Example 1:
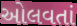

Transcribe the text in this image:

ઓલવતાં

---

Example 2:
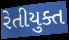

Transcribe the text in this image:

રેતીયુક્ત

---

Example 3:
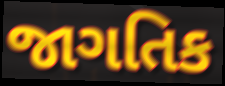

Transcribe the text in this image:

જાગતિક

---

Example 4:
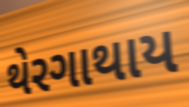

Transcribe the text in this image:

થેરગાથાય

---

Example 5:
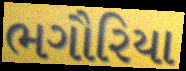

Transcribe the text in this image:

ભગૌરિયા